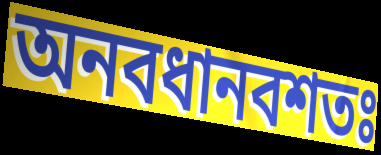
অনবধানবশতঃ